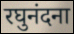
रघुनंदना